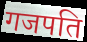
गजपति